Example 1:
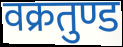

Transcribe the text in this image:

वक्रतुण्ड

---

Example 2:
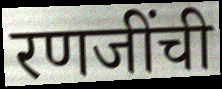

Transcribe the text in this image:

रणजींची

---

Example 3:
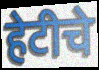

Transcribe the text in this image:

हेटीचे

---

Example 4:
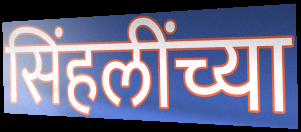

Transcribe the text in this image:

सिंहलींच्या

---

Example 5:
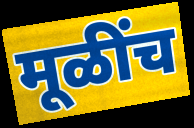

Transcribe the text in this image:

मूळींच